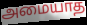
அமையாத